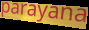
parayana